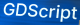
GDScript